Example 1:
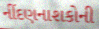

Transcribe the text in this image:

નીંદણનાશકોની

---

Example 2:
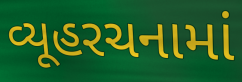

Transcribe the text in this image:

વ્યૂહરચનામાં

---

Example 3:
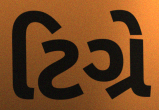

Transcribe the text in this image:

ટિગ્રે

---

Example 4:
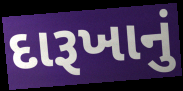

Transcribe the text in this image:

દારૂખાનું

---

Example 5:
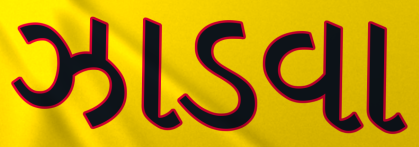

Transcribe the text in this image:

ઝાડવા